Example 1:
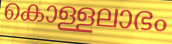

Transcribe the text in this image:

കൊള്ളലാഭം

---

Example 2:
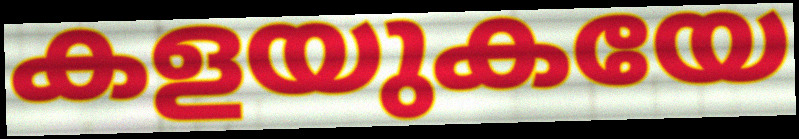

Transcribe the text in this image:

കളയുകയേ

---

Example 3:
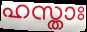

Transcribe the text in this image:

ഹസ്താഃ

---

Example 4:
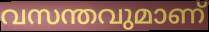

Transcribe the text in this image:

വസന്തവുമാണ്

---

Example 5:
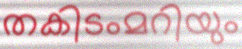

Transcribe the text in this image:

തകിടംമറിയും